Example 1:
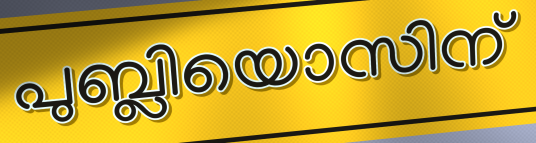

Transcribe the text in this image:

പുബ്ലിയൊസിന്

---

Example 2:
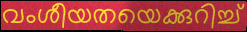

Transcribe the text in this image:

വംശീയതയെക്കുറിച്ച്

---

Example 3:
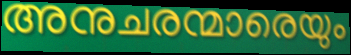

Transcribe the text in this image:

അനുചരന്മാരെയും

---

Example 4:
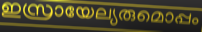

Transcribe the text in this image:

ഇസ്രായേല്യരുമൊപ്പം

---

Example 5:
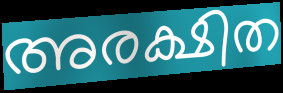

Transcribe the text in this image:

അരക്ഷിത